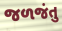
જળજંતુ